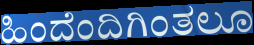
ಹಿಂದೆಂದಿಗಿಂತಲೂ